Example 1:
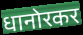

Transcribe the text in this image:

धानोरकर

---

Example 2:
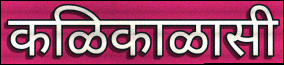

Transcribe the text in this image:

कळिकाळासी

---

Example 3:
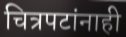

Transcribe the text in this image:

चित्रपटांनाही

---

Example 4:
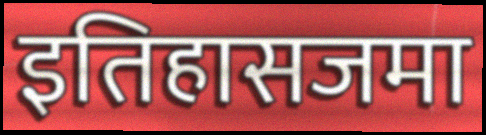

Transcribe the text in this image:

इतिहासजमा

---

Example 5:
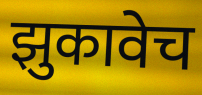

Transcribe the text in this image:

झुकावेच